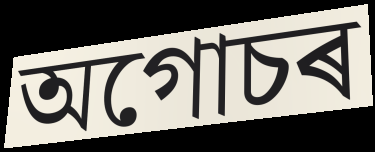
অগোচৰ